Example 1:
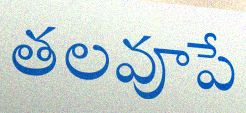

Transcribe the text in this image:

తలవూపే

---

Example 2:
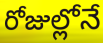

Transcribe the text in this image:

రోజుల్లోనే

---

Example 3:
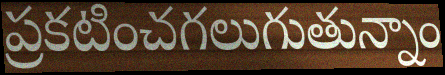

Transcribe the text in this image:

ప్రకటించగలుగుతున్నాం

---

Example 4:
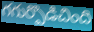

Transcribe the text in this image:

గగుర్పొడిచింది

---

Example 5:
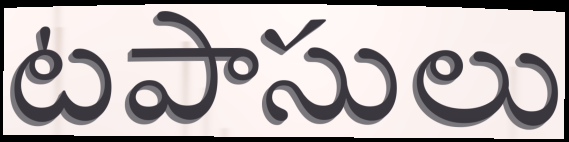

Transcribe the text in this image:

టపాసులు